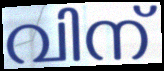
വിന്